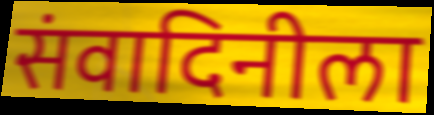
संवादिनीला